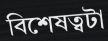
বিশেষত্বটা